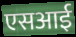
एसआई